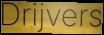
Drijvers